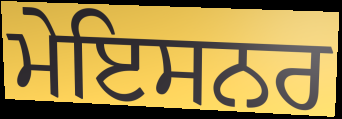
ਮੇਇਸਨਰ